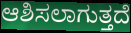
ಆಶಿಸಲಾಗುತ್ತದೆ